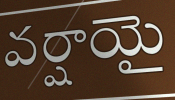
వర్షాయై